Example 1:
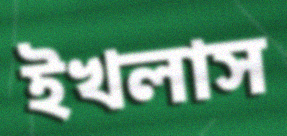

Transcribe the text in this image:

ইখলাস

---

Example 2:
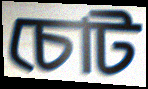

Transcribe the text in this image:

চোট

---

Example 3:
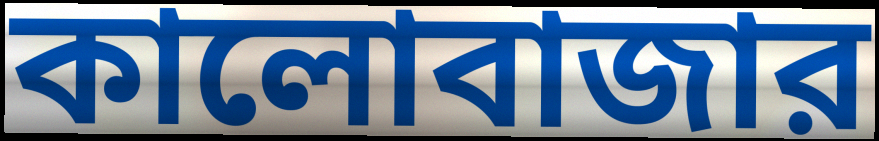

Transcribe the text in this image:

কালোবাজার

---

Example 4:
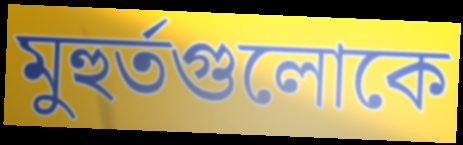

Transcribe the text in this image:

মুহুর্তগুলোকে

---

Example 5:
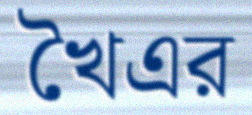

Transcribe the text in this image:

খৈএর